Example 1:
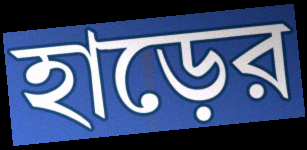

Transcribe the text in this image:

হাড়ের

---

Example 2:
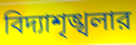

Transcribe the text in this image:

বিদ্যাশৃঙ্খলার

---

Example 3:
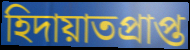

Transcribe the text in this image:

হিদায়াতপ্রাপ্ত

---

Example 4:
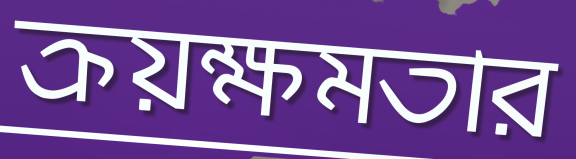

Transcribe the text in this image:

ক্রয়ক্ষমতার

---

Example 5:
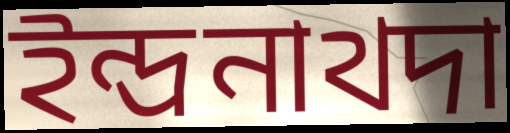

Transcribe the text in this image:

ইন্দ্রনাথদা